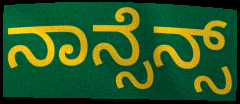
ನಾನ್ಸೆನ್ಸ್